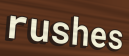
rushes